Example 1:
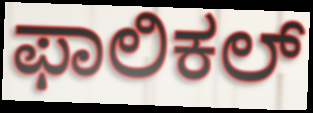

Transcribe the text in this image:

ಫಾಲಿಕಲ್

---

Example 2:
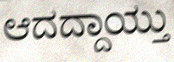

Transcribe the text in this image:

ಆದದ್ದಾಯ್ತು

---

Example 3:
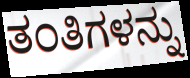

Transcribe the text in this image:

ತಂತಿಗಳನ್ನು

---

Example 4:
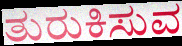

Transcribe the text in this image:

ತುರುಕಿಸುವ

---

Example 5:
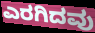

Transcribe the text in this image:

ಎರಗಿದವು